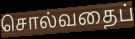
சொல்வதைப்